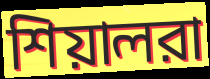
শিয়ালরা